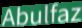
Abulfaz